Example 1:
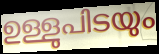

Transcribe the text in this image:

ഉള്ളുപിടയും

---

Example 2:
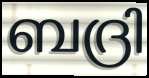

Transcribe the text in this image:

ബദ്രി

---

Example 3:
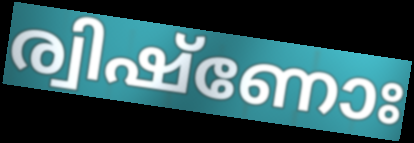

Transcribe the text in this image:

ര്വിഷ്ണോഃ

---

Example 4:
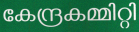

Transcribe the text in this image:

കേന്ദ്രകമ്മിറ്റി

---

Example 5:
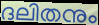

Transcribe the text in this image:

ദലിതനും